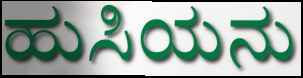
ಹುಸಿಯನು